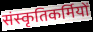
संस्कृतिकर्मियों